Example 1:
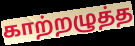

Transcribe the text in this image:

காற்றழுத்த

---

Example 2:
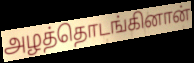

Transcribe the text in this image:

அழத்தொடங்கினான்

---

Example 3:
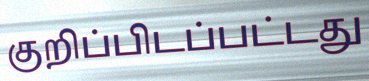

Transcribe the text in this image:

குறிப்பிடப்பட்டது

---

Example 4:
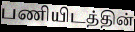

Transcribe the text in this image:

பணியிடத்தின்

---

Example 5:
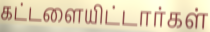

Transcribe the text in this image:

கட்டளையிட்டார்கள்